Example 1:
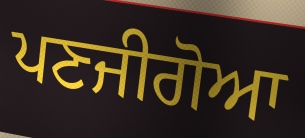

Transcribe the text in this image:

ਪਣਜੀਗੋਆ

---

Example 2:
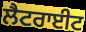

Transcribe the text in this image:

ਲੈਟਰਾਈਟ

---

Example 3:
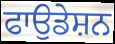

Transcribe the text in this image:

ਫਾਉਡੇਸ਼ਨ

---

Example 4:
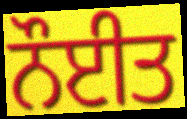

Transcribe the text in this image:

ਨੌਈਤ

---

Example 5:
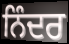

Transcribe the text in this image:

ਨਿੰਦਰ